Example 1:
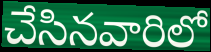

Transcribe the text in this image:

చేసినవారిలో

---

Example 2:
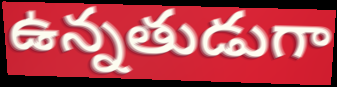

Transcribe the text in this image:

ఉన్నతుడుగా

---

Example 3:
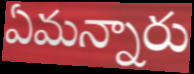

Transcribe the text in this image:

ఏమన్నారు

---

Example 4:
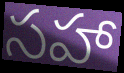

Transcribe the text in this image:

సహా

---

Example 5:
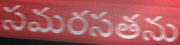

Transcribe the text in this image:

సమరసతను